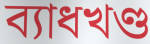
ব্যাধখণ্ড